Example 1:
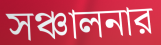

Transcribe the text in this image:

সঞ্চালনার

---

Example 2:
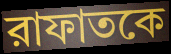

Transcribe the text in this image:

রাফাতকে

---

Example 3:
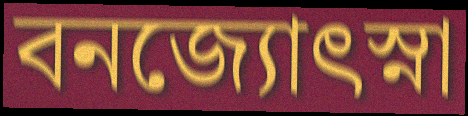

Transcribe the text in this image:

বনজ্যোৎস্না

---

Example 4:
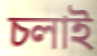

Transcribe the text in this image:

চলাই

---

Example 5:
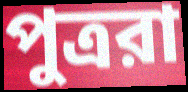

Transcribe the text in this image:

পুত্ররা